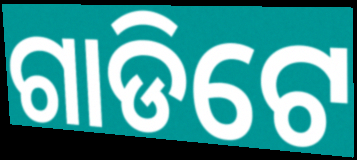
ଗାଡିଟେ